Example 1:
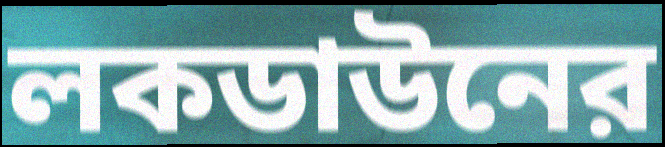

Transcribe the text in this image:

লকডাউনের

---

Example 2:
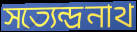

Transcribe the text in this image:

সত্যেন্দ্রনাথ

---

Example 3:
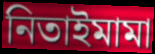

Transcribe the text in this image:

নিতাইমামা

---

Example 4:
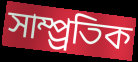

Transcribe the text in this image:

সাম্প্র্রতিক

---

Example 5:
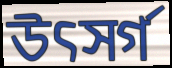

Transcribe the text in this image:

উৎসর্গ